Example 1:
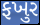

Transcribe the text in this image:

ફખુર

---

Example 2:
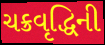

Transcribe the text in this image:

ચક્રવૃદ્ધિની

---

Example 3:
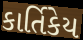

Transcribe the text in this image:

કાર્તિકેય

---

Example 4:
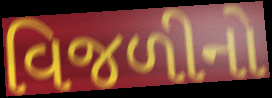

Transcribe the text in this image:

વિજળીનો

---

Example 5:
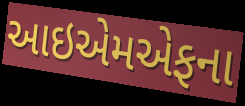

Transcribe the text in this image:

આઇએમએફના